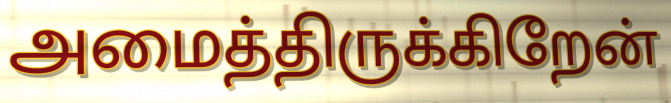
அமைத்திருக்கிறேன்